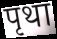
पृथा